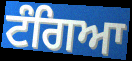
ਟੰਗਿਆ